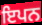
ਇਪਨ